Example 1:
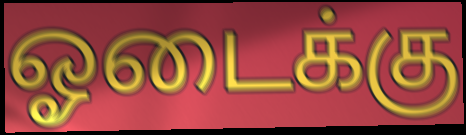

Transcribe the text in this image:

ஓடைக்கு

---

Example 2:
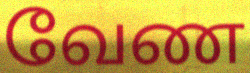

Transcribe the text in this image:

வேண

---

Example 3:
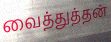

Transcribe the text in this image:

வைத்துத்தன்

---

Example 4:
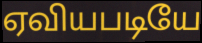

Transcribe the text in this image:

ஏவியபடியே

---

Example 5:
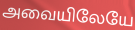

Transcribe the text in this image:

அவையிலேயே